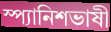
স্প্যানিশভাষী